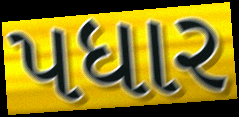
પધાર